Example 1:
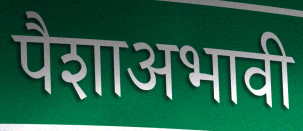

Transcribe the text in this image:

पैशाअभावी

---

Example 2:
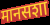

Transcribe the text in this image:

मानसशा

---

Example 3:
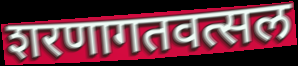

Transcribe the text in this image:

शरणागतवत्सल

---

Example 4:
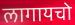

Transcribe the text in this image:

लागायचो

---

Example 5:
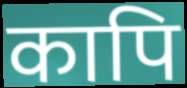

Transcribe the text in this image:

कापि